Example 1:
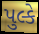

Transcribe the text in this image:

પુલ્કે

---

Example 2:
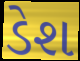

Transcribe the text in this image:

ડેશ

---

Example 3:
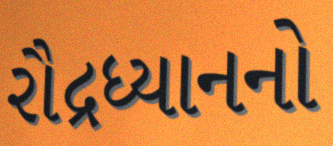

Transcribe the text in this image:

રૌદ્રધ્યાનનો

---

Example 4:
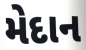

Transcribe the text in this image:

મેદાન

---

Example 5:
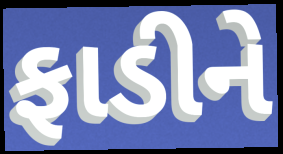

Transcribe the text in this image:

ફાડીને